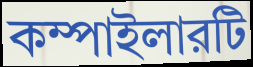
কম্পাইলারটি